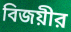
বিজয়ীর